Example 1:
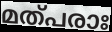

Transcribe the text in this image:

മത്പരാഃ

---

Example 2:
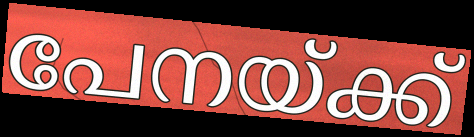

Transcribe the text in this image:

പേനയ്ക്ക്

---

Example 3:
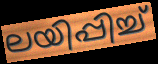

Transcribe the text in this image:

ലയിപ്പിച്ച്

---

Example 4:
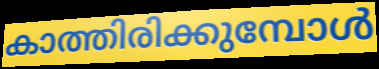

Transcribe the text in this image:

കാത്തിരിക്കുമ്പോൾ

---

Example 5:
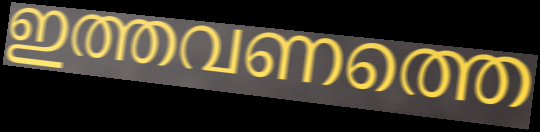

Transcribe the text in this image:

ഇത്തവണത്തെ